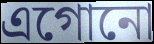
এগোনো